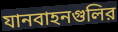
যানবাহনগুলির